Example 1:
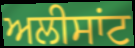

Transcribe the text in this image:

ਅਲੀਸਾਂਟ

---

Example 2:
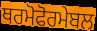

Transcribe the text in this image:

ਥਰਮੋਫੋਰਮੇਬਲ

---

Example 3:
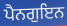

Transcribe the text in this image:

ਪੈਨਗੁਇਨ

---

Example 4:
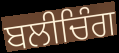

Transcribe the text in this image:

ਬਲੀਚਿੰਗ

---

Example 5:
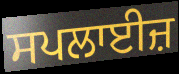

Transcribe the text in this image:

ਸਪਲਾਈਜ਼